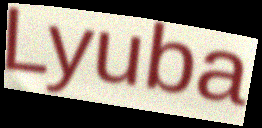
Lyuba